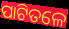
ପାଟିତଳେ